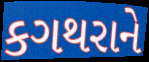
કગથરાને